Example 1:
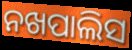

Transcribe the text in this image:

ନଖପାଲିସ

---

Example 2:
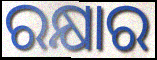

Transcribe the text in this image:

ରକ୍ଷାର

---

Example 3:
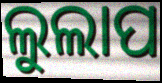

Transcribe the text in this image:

ଲୁଲାପ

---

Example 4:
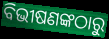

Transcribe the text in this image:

ବିଭୀଷଣଙ୍କଠାରୁ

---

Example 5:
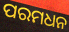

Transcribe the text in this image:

ପରମଧନ